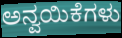
ಅನ್ವಯಿಕೆಗಳು